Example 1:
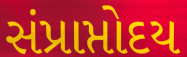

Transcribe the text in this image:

સંપ્રાપ્તોદય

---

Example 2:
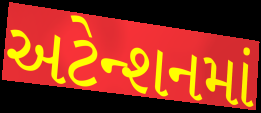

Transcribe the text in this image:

અટેન્શનમાં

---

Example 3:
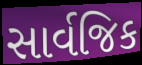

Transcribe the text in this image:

સાર્વજિક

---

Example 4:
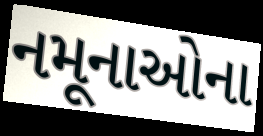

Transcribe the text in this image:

નમૂનાઓના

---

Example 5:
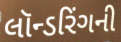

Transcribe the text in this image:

લૉન્ડરિંગની